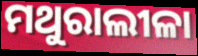
ମଥୁରାଲୀଳା